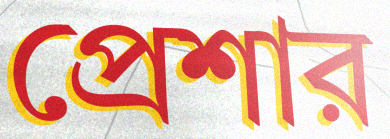
প্রেশার